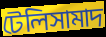
টেলিসামাদ